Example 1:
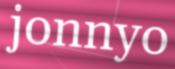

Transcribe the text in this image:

jonnyo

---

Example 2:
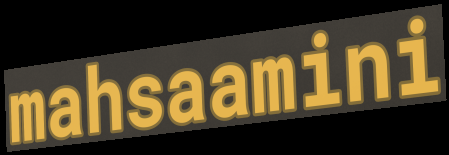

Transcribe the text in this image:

mahsaamini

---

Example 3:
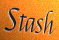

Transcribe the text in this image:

Stash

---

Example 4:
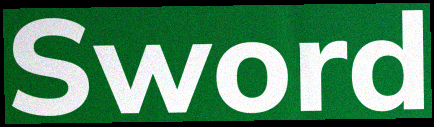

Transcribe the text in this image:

Sword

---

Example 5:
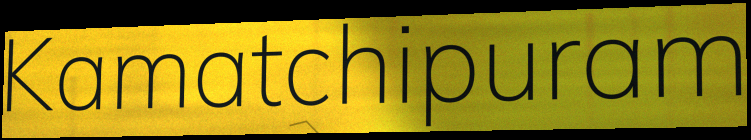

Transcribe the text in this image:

Kamatchipuram